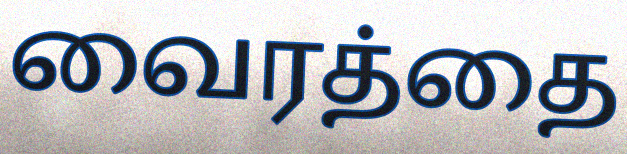
வைரத்தை